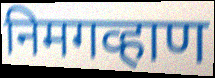
निमगव्हाण